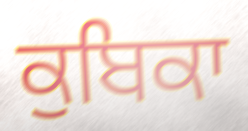
ਕੁਬਿਕਾ